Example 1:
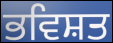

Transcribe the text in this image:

ਭਵਿਸ਼ਤ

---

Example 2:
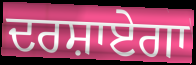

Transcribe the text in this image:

ਦਰਸ਼ਾਏਗਾ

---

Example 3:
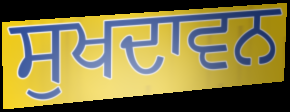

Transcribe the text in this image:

ਸੁਖਦਾਵਨ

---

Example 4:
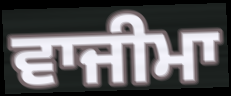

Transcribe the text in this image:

ਵਾਜੀਮਾ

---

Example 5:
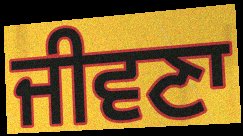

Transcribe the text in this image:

ਜੀਵਣਾ